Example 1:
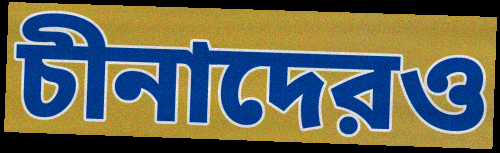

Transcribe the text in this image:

চীনাদেরও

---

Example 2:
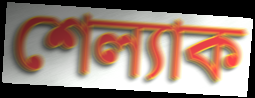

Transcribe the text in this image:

শেল্যাক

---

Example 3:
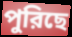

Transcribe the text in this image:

পুরিছে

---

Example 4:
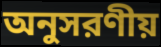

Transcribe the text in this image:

অনুসরণীয়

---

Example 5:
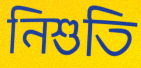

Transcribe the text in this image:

নিশুতি